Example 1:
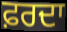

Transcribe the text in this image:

ਫ਼ਰਦਾ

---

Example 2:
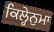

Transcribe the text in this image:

ਕਿਲ੍ਹੇਨੁਮਾ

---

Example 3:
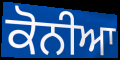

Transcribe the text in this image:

ਕੋਨੀਆ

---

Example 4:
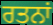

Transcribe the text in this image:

ਰਤਨਾਂ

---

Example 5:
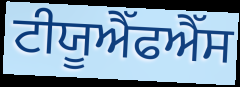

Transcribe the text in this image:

ਟੀਯੂਐੱਫਐੱਸ